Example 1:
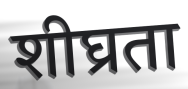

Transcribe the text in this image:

शीघ्रता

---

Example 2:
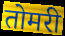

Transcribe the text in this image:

तोमरी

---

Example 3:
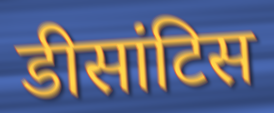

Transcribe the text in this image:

डीसांटिस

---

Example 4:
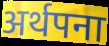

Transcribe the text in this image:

अर्थपना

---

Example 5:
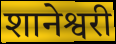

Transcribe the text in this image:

शानेश्वरी